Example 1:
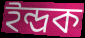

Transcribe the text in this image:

ইন্দ্ৰক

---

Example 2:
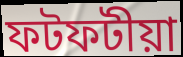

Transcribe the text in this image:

ফটফটীয়া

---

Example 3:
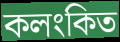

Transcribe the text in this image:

কলংকিত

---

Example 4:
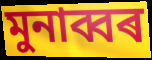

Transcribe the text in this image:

মুনাব্বৰ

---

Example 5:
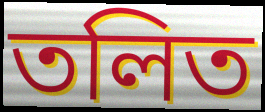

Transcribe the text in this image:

তলিত